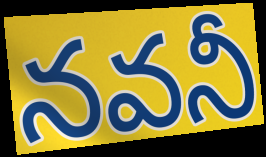
నవనీ